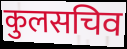
कुलसचिव